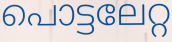
പൊട്ടലേറ്റ